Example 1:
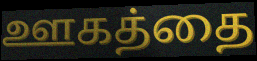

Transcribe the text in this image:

ஊகத்தை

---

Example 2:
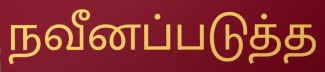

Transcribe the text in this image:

நவீனப்படுத்த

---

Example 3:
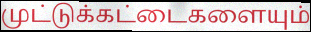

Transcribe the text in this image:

முட்டுக்கட்டைகளையும்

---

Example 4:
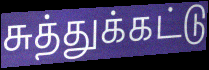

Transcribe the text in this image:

சுத்துக்கட்டு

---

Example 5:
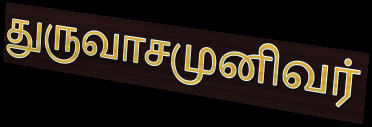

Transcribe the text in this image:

துருவாசமுனிவர்